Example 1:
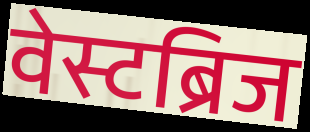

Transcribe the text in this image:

वेस्टब्रिज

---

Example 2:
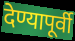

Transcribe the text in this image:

देण्यापूर्वी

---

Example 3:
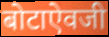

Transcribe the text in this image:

बोटाऐवजी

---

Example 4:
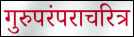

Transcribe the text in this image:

गुरुपरंपराचरित्र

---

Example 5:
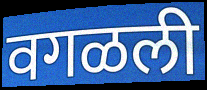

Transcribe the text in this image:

वगळली